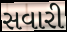
સવારી